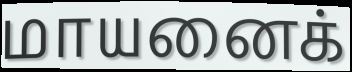
மாயனைக்